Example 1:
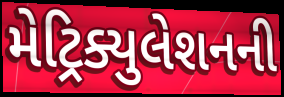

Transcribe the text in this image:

મેટ્રિક્યુલેશનની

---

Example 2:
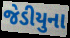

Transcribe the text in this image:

જેડીયુના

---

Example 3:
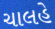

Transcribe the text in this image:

ચાલહે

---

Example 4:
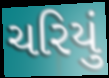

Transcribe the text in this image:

ચરિયું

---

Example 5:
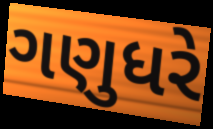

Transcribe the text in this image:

ગણુધરે